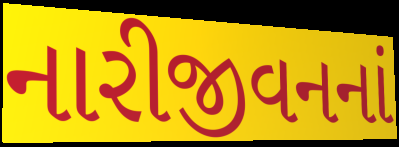
નારીજીવનનાં